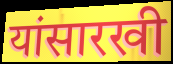
यांसारखी